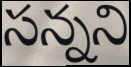
సన్నని